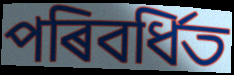
পৰিবৰ্ধিত